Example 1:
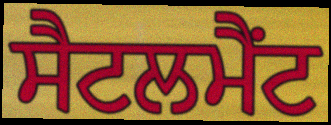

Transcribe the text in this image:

ਸੈਟਲਮੈਂਟ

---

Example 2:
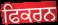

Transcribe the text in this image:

ਫਿਕਰਨ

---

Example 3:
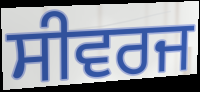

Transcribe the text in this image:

ਸੀਵਰਜ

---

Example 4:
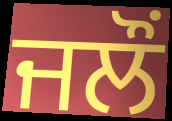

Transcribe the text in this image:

ਜਲੌਂ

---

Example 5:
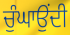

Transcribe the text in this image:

ਚੁੰਘਾਉਂਦੀ